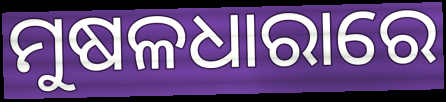
ମୁଷଳଧାରାରେ